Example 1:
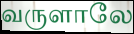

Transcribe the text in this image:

வருளாலே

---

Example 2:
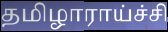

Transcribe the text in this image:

தமிழாராய்ச்சி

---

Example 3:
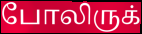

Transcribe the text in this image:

போலிருக்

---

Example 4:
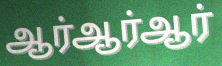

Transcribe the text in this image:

ஆர்ஆர்ஆர்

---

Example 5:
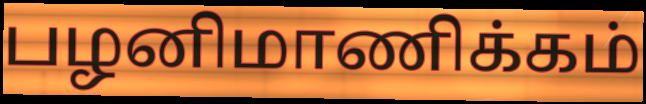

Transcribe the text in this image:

பழனிமாணிக்கம்